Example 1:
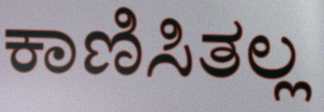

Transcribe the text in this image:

ಕಾಣಿಸಿತಲ್ಲ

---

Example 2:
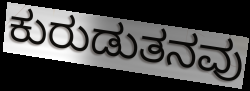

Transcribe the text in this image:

ಕುರುಡುತನವು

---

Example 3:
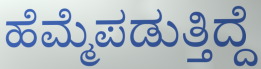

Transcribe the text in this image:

ಹೆಮ್ಮೆಪಡುತ್ತಿದ್ದೆ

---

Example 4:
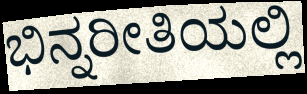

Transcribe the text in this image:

ಭಿನ್ನರೀತಿಯಲ್ಲಿ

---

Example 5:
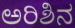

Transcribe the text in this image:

ಅರಿಶಿನ